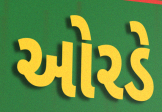
ઓરડે